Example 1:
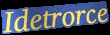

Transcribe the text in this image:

Idetrorce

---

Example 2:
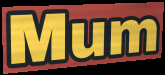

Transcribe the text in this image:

Mum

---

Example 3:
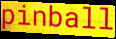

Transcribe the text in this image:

pinball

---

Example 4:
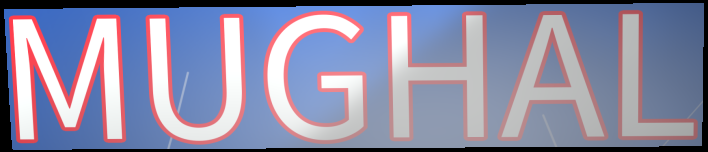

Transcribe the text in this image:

MUGHAL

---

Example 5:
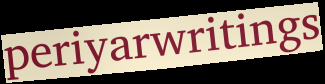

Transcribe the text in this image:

periyarwritings